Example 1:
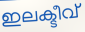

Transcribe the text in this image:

ഇലക്ടീവ്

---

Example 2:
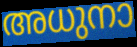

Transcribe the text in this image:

അധുനാ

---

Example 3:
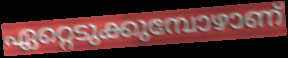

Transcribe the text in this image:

ഏറ്റെടുക്കുമ്പോഴാണ്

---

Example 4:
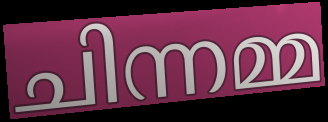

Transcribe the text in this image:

ചിന്നമ്മ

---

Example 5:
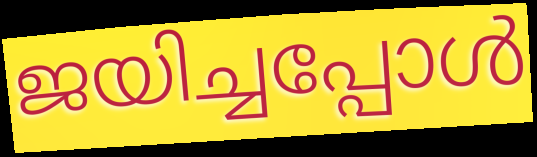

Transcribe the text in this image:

ജയിച്ചപ്പോൾ